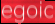
egoic